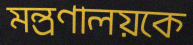
মন্ত্রণালয়কে